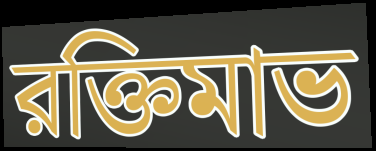
রক্তিমাভ